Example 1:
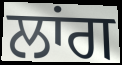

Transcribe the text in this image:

ਲਾਂਗ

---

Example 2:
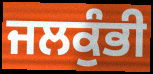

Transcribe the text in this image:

ਜਲਕੁੰਭੀ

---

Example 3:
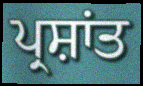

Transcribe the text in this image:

ਪ੍ਰਸ਼ਾਂਤ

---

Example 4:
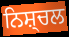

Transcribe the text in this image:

ਨਿਸ਼੍ਚਲ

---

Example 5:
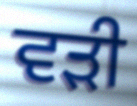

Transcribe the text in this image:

ਵੜੀ